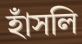
হাঁসলি